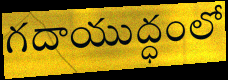
గదాయుద్ధంలో